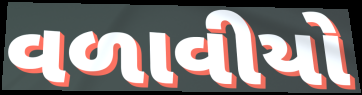
વળાવીયો